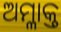
ଅମ୍ଳାକ୍ତ